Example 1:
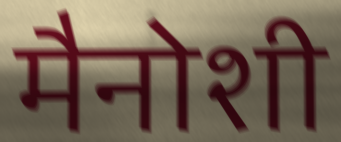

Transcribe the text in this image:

मैनोशी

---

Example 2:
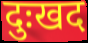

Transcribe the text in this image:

दुःखद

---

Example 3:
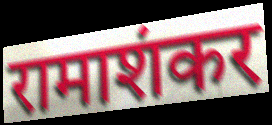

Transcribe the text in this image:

रामाशंकर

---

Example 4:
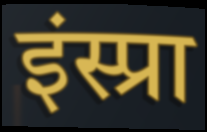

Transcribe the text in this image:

इंस्प्रा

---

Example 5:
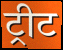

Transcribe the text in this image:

ट्रीट